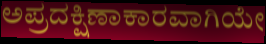
ಅಪ್ರದಕ್ಷಿಣಾಕಾರವಾಗಿಯೇ